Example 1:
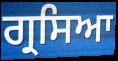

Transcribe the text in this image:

ਗ੍ਰਸਿਆ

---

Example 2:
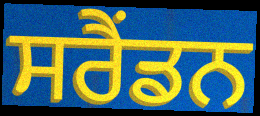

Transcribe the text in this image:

ਸਰੈਂਡਨ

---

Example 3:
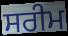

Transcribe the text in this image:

ਸਰੀਮ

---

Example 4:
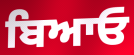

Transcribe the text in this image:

ਬਿਆਓ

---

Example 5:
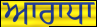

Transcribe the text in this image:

ਆਰਾਧਾ